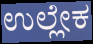
ಉಲ್ಲೇಕ